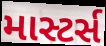
માસ્ટર્સ